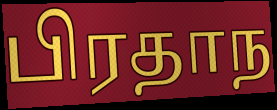
பிரதாந